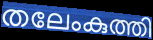
തലേംകുത്തി